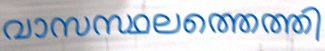
വാസസ്ഥലത്തെത്തി